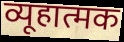
व्यूहात्मक